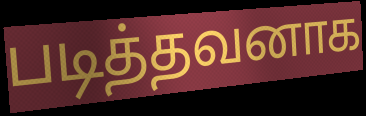
படித்தவனாக